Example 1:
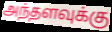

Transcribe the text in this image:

அந்தளவுக்கு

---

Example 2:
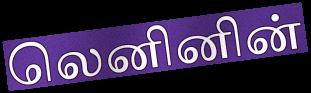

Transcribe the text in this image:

லெனினின்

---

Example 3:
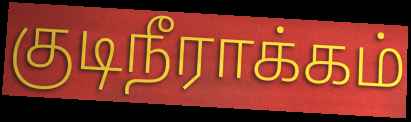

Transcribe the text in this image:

குடிநீராக்கம்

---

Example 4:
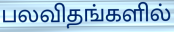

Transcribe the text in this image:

பலவிதங்களில்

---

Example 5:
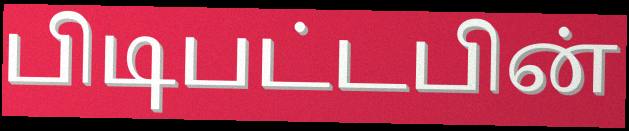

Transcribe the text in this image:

பிடிபட்டபின்